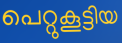
പെറ്റുകൂട്ടിയ